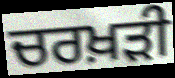
ਚਰਖ਼ੜੀ